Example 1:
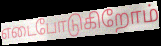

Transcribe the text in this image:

எடைபோடுகிறோம்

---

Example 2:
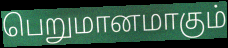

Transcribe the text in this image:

பெறுமானமாகும்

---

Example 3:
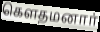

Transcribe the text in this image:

கெளதமனார்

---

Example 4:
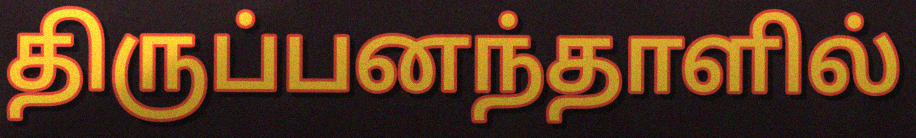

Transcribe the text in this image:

திருப்பனந்தாளில்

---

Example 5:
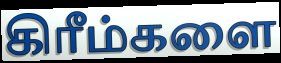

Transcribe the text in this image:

கிரீம்களை